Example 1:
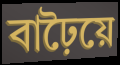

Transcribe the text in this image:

বাঢ়ৈয়ে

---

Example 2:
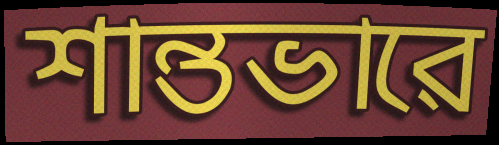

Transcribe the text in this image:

শান্তভাৱে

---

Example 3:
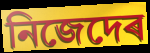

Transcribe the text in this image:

নিজেদেৰ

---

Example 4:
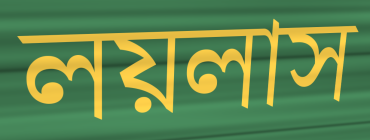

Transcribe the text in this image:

লয়লাস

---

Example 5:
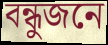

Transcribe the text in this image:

বন্ধুজনে